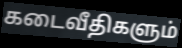
கடைவீதிகளும்